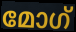
മോഗ്